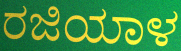
ರಜಿಯಾಳ